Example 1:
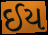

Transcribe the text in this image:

ઈય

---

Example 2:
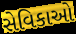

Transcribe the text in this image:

સેવિકાઓ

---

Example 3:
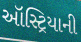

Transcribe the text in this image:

ઑસ્ટ્રિયાની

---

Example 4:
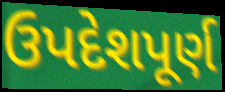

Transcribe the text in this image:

ઉપદેશપૂર્ણ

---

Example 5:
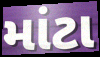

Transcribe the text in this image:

માંટા